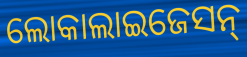
ଲୋକାଲାଇଜେସନ୍